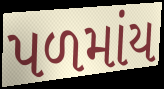
પળમાંય